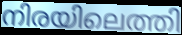
നിരയിലെത്തി